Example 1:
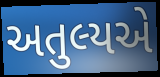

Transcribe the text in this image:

અતુલ્યએ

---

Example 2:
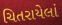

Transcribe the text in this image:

ચિતરાયેલાં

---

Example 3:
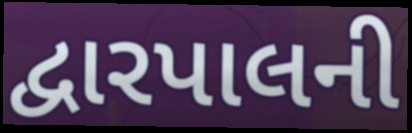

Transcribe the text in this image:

દ્વારપાલની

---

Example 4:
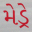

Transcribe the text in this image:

મેડ્રે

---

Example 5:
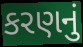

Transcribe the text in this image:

કરણનું